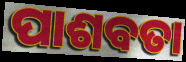
ପାଶବତା